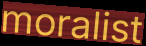
moralist